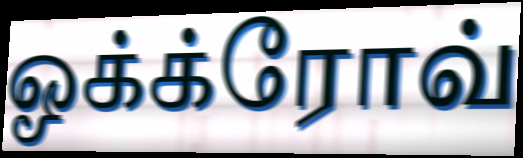
ஓக்க்ரோவ்